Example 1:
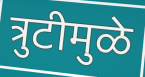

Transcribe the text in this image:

त्रुटीमुळे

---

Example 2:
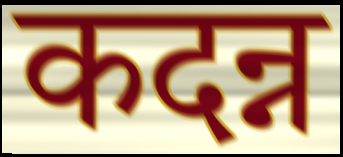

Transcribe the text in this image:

कदन्न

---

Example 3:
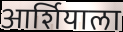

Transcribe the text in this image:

आर्शियाला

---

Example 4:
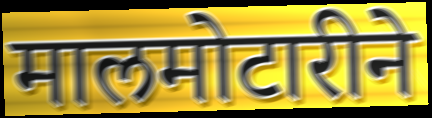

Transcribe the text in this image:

मालमोटारीने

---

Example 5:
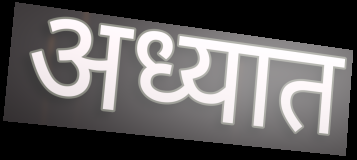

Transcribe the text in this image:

अध्यात